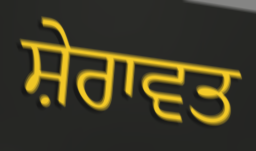
ਸ਼ੇਰਾਵਤ